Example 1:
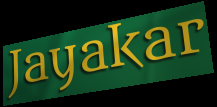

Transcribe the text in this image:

Jayakar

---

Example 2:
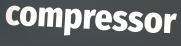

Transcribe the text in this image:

compressor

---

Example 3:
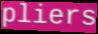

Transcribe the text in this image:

pliers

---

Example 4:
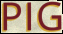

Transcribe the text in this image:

PIG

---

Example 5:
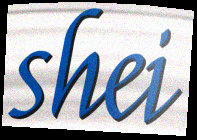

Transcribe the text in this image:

shei